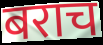
बराच